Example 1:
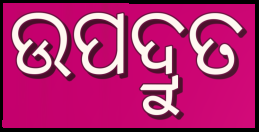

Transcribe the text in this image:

ଉପଦ୍ରୁତ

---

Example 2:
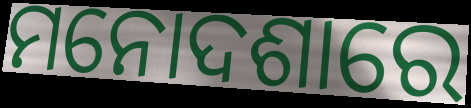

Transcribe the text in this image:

ମନୋଦଶାରେ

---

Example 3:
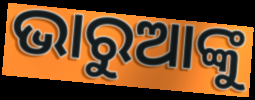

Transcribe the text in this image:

ଭାରୁଆଙ୍କୁ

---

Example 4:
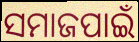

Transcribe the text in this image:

ସମାଜପାଇଁ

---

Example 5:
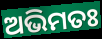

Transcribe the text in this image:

ଅଭିମତଃ